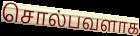
சொல்பவளாக